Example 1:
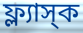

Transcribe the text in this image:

ফ্ল্যাস্‌ক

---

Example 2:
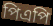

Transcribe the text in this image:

পিএপি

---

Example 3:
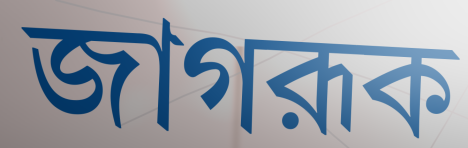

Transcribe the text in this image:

জাগরূক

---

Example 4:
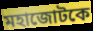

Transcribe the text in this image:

মহাজোটকে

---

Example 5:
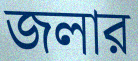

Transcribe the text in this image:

জলার